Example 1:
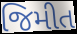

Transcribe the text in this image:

જિમીત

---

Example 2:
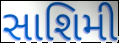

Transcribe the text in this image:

સાશિમી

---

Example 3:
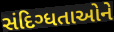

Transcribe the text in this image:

સંદિગ્ધતાઓને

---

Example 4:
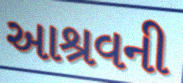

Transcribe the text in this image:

આશ્રવની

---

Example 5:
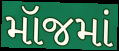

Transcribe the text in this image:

મૉજમાં